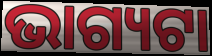
ଭାଗ୍ୟଟା